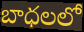
బాధలలో